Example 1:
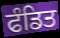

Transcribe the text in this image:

ਫੰਡਿਤ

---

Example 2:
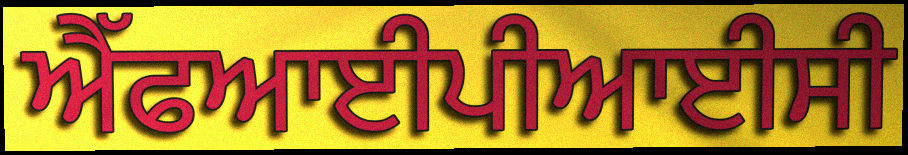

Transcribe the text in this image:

ਐੱਫਆਈਪੀਆਈਸੀ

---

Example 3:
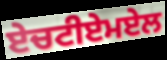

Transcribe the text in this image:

ਏਚਟੀਏਮਏਲ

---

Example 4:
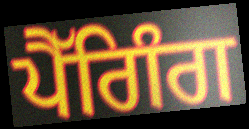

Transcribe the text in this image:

ਪੈੱਗਿੰਗ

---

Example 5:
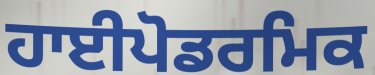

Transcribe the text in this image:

ਹਾਈਪੋਡਰਮਿਕ